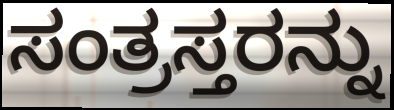
ಸಂತ್ರಸ್ತರನ್ನು